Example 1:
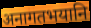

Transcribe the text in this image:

अनागतभयानि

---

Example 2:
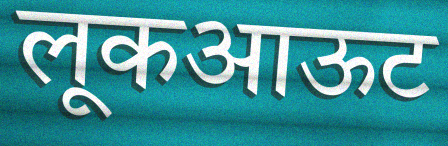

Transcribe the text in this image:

लूकआऊट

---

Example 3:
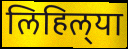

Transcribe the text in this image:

लिहिल्या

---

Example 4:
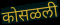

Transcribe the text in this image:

कोसळली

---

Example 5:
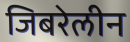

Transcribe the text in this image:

जिबरेलीन